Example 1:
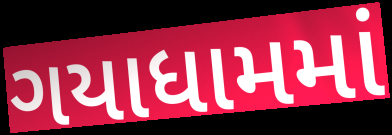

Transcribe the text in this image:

ગયાધામમાં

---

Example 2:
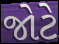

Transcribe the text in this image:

જોટે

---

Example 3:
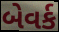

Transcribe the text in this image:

બેવર્ક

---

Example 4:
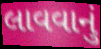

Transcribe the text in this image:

લાવવાનું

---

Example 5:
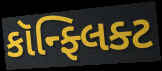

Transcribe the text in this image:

કૉન્ફ્લિક્ટ